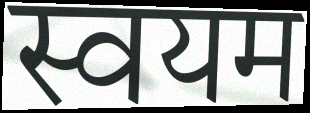
स्वयम